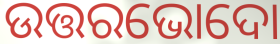
ଉତ୍ତରଭୋଦୋ